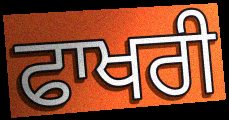
ਫਾਖਰੀ